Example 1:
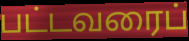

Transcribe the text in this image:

பட்டவரைப்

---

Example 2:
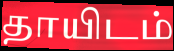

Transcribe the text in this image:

தாயிடம்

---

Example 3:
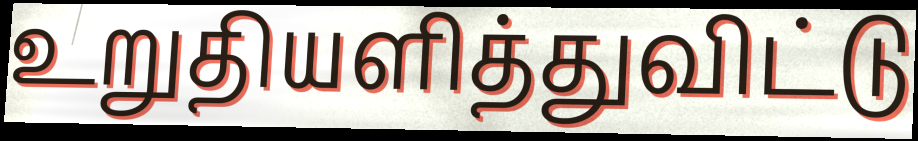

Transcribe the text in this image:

உறுதியளித்துவிட்டு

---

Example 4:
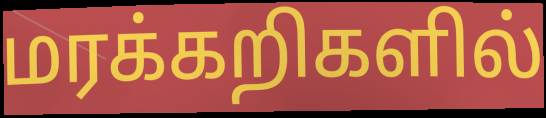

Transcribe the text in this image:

மரக்கறிகளில்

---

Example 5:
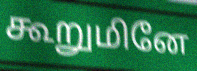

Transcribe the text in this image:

கூறுமினே